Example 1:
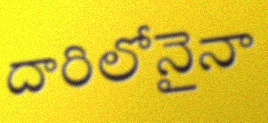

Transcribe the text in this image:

దారిలోనైనా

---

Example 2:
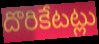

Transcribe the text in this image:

దొరికేటట్లు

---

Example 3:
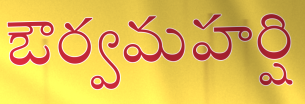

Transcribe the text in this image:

ఔర్వమహర్షి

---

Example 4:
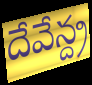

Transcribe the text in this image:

దేవేన్ద్ర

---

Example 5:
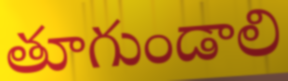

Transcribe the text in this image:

తూగుండాలి